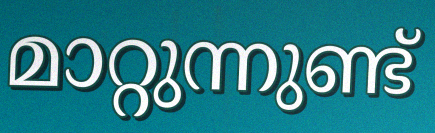
മാറ്റുന്നുണ്ട്